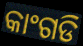
କାଂଗଡି